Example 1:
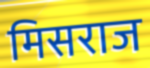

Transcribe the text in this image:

मिसराज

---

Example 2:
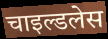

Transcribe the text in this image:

चाइल्डलेस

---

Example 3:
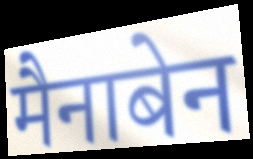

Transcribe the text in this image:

मैनाबेन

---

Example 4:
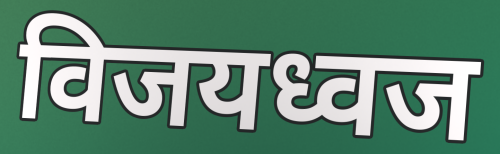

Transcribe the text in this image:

विजयध्वज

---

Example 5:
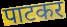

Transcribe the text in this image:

पाटकर